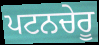
ਪਟਨਚੇਰੂ